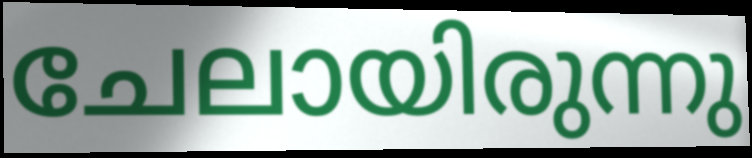
ചേലായിരുന്നു